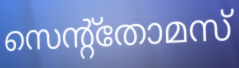
സെന്റ്തോമസ്